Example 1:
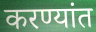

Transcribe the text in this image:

करण्यांत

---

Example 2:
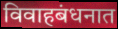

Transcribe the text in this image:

विवाहबंधनात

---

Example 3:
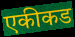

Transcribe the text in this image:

एकीकड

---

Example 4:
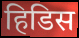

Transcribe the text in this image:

हिडिस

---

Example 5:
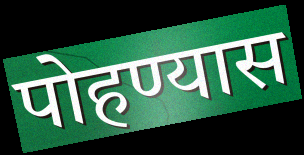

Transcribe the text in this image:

पोहण्यास